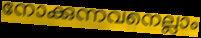
നോക്കുന്നവനെല്ലാം